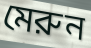
মেৰুন